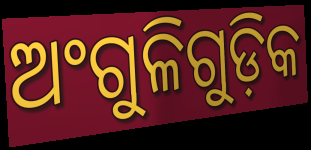
ଅଂଗୁଳିଗୁଡ଼ିକ